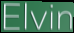
Elvin